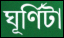
ঘূর্ণিটা